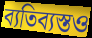
ব্যতিব্যস্তও